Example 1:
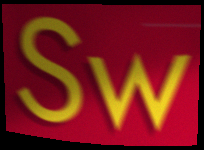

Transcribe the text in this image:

Sw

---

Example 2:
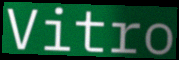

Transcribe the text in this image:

Vitro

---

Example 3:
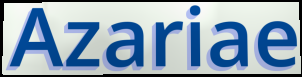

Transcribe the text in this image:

Azariae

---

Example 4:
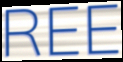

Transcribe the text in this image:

REE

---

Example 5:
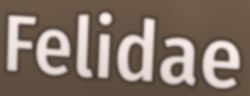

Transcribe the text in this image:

Felidae